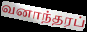
வனாந்தரப்